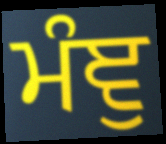
ਮੰਞੁ